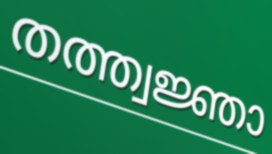
തത്ത്വജ്ഞാ